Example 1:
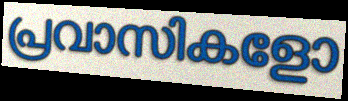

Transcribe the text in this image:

പ്രവാസികളോ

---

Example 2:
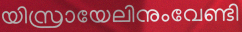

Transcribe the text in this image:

യിസ്രായേലിനുംവേണ്ടി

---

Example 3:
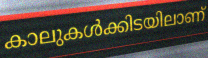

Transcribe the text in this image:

കാലുകൾക്കിടയിലാണ്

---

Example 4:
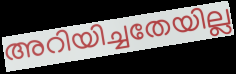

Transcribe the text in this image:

അറിയിച്ചതേയില്ല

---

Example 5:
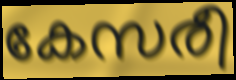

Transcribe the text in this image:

കേസരീ